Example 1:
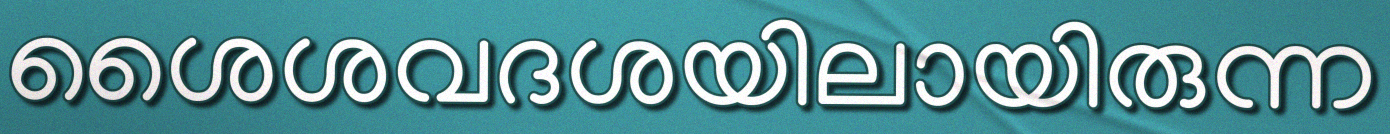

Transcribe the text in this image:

ശൈശവദശയിലായിരുന്ന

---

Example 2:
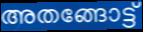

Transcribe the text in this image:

അതങ്ങോട്ട്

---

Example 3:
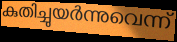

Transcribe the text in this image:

കുതിച്ചുയർന്നുവെന്ന്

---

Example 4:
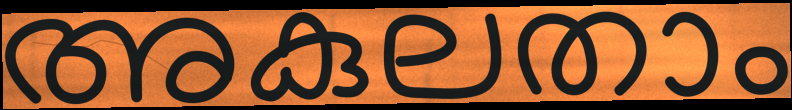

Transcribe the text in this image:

അകുലതാം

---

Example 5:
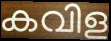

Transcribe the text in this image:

കവിള